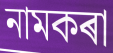
নামকৰা